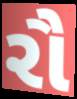
રૌ